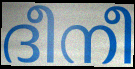
ദീനീ